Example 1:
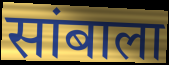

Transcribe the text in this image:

सांबाला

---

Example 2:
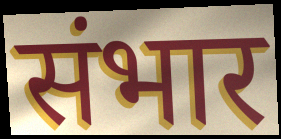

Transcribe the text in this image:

संभार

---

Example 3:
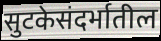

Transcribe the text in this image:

सुटकेसंदर्भातील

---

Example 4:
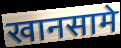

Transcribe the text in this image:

खानसामे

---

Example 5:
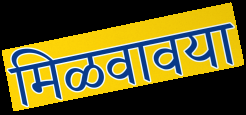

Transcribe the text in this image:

मिळवावया